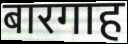
बारगाह